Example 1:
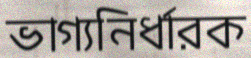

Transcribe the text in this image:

ভাগ্যনির্ধারক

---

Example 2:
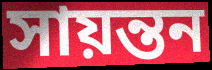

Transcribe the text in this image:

সায়ন্তন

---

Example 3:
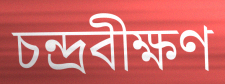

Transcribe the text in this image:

চন্দ্রবীক্ষণ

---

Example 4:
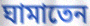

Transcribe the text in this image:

ঘামাতেন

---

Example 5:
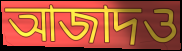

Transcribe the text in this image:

আজাদও